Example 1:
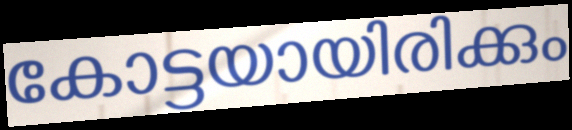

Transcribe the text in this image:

കോട്ടയായിരിക്കും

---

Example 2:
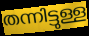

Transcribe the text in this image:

തന്നിട്ടുള്ള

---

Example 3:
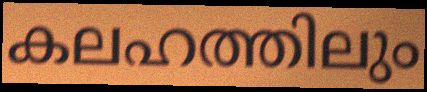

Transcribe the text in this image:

കലഹത്തിലും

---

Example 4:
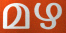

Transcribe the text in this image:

മഴ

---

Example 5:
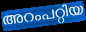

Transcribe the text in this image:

അറംപറ്റിയ